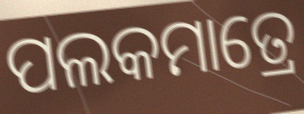
ପଲକମାତ୍ରେ